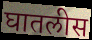
घातलीस